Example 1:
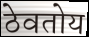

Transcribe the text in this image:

ठेवतोय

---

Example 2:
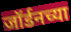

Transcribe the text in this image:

जॉर्डनच्या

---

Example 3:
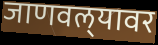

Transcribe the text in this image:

जाणवल्यावर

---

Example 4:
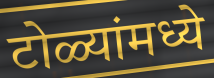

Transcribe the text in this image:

टोळ्यांमध्ये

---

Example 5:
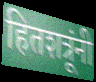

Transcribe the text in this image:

हितशत्रूंनी